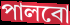
পালবো